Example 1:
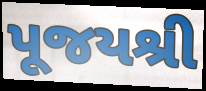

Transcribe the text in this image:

પૂજયશ્રી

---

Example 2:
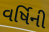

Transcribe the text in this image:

વર્ષિની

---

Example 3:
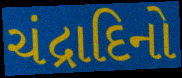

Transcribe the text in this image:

ચંદ્રાદિનો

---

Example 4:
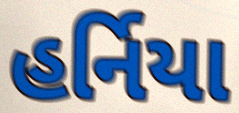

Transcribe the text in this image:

હર્નિયા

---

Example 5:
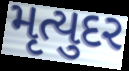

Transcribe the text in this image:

મૃત્યુદર